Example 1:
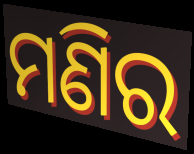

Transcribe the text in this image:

ମଣିର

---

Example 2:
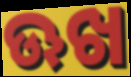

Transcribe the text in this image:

ଊଖ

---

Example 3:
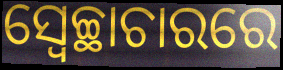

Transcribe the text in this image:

ସ୍ବେଚ୍ଛାଚାରରେ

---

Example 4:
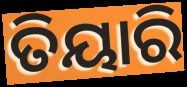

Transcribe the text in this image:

ତିୟାରି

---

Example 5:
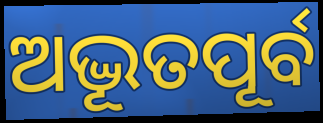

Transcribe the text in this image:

ଅଦ୍ଭୂତପୂର୍ବ